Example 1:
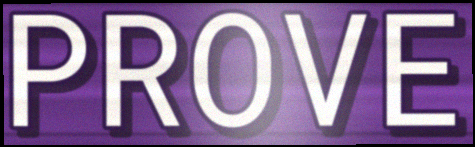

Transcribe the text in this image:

PROVE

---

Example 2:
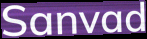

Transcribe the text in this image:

Sanvad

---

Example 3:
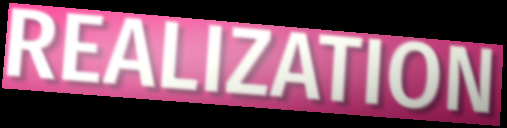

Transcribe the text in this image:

REALIZATION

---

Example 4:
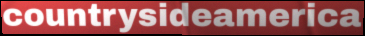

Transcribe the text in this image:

countrysideamerica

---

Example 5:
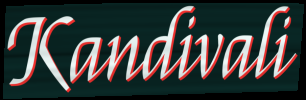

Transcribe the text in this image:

Kandivali